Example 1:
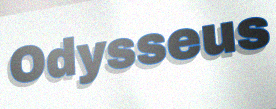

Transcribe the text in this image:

Odysseus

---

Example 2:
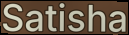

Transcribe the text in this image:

Satisha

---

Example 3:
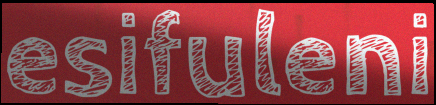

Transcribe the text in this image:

esifuleni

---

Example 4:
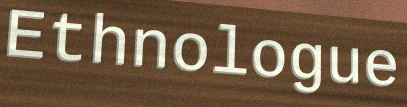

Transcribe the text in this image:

Ethnologue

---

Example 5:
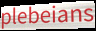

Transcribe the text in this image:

plebeians